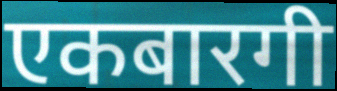
एकबारगी